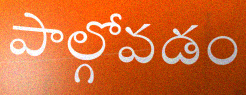
పాల్గోవడం